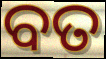
ବତ